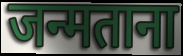
जन्मताना